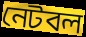
নেটবল